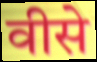
वीसे